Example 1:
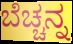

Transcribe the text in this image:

ಬೆಚ್ಚನ್ನ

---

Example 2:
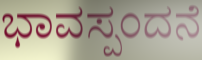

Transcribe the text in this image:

ಭಾವಸ್ಪಂದನೆ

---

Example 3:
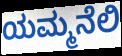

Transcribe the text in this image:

ಯಮ್ಮನೆಲಿ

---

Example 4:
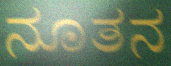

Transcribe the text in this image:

ನೂತನ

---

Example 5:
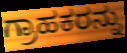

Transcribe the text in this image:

ಗ್ರಾಹಕರನ್ನು